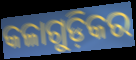
କଳାଗୁଡ଼ିକର